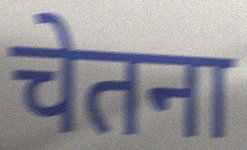
चेतना